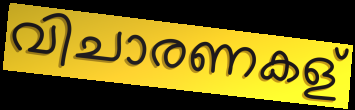
വിചാരണകള്